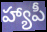
హ్యాపీ